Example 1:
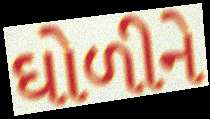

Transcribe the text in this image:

ઘોળીને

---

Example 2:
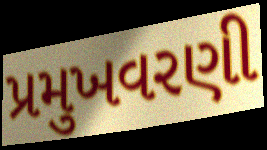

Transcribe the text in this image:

પ્રમુખવરણી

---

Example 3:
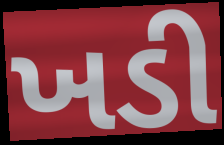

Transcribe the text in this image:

ખડી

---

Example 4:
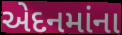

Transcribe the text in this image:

એદનમાંના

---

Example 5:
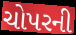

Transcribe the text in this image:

ચોપરની